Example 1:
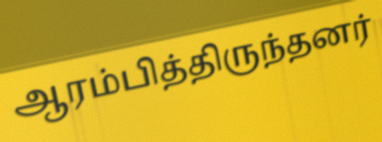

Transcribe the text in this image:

ஆரம்பித்திருந்தனர்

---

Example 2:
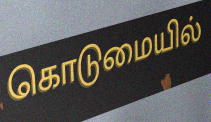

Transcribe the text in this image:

கொடுமையில்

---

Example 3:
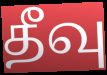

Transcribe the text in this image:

தீவு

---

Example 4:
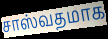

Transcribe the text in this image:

சாஸ்வதமாக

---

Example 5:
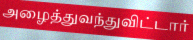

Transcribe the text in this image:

அழைத்துவந்துவிட்டார்